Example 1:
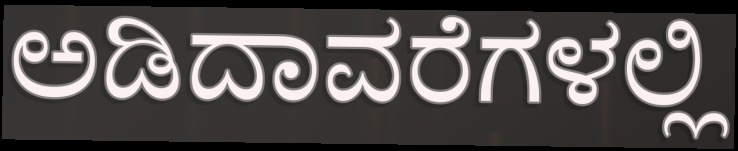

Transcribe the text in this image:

ಅಡಿದಾವರೆಗಳಲ್ಲಿ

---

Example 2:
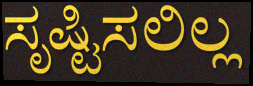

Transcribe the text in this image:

ಸೃಷ್ಟಿಸಲಿಲ್ಲ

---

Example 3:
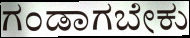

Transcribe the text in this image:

ಗಂಡಾಗಬೇಕು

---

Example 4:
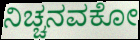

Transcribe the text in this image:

ನಿಚ್ಚನವಕೋ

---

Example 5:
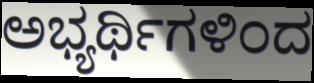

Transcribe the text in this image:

ಅಭ್ಯರ್ಥಿಗಳಿಂದ